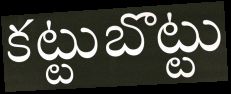
కట్టుబొట్టు